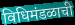
विधिमंडळाची